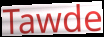
Tawde